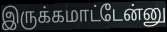
இருக்கமாட்டேன்னு